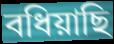
বধিয়াছি